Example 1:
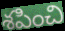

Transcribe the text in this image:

శపించి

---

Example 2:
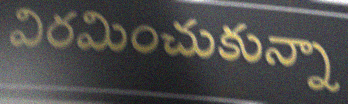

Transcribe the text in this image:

విరమించుకున్నా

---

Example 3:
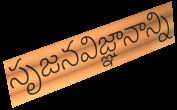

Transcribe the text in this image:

సృజనవిజ్ఞానాన్ని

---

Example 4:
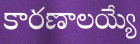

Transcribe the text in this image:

కారణాలయ్యే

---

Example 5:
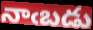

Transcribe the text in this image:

నాఁబడు